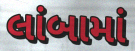
લાંબામાં